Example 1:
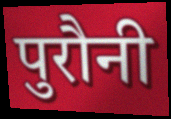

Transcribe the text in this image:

पुरौनी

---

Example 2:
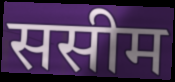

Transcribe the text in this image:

ससीम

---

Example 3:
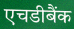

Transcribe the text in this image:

एचडीबैंक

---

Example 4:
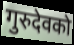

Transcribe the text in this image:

गुरुदेवको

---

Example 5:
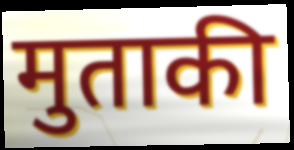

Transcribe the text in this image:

मुताकी